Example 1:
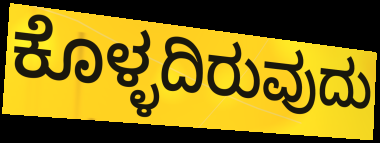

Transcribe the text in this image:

ಕೊಳ್ಳದಿರುವುದು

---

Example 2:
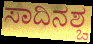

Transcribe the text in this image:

ಸಾದಿನಶ್ಚ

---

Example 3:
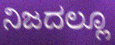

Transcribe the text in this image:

ನಿಜದಲ್ಲೂ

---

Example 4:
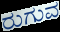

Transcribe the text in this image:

ರುಗುವ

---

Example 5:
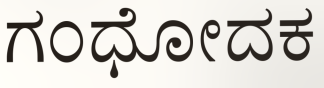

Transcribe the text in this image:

ಗಂಧೋದಕ